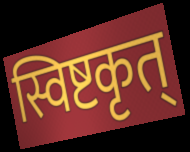
स्विष्टकृत्